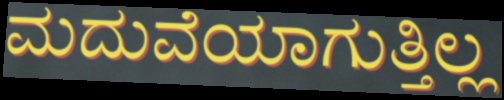
ಮದುವೆಯಾಗುತ್ತಿಲ್ಲ